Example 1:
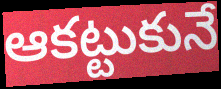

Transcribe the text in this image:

ఆకట్టుకునే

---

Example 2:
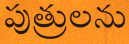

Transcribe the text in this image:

పుత్రులను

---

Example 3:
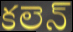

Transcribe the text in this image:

కలెన్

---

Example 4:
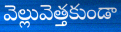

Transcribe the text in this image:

వెల్లువెత్తకుండా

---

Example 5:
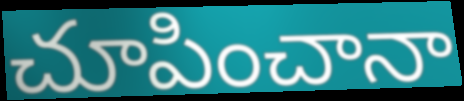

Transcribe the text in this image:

చూపించానా